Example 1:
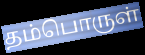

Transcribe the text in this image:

தம்பொருள்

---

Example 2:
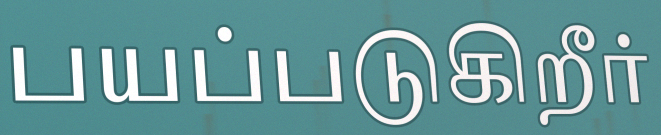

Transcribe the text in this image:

பயப்படுகிறீர்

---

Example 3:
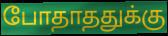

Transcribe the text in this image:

போதாததுக்கு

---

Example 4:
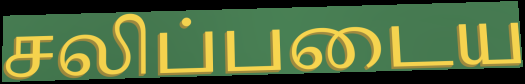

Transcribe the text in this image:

சலிப்படைய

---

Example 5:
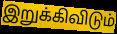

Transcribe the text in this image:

இறுக்கிவிடும்